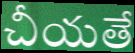
చీయతే